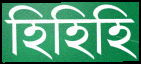
হিহিহি